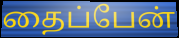
தைப்பேன்